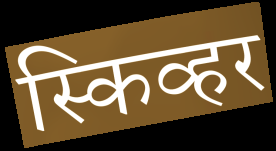
स्किव्हर